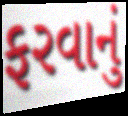
ફરવાનું